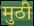
मुठी